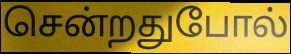
சென்றதுபோல்